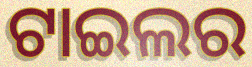
ଟାଇଲର